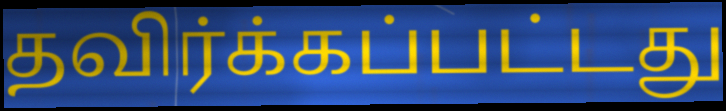
தவிர்க்கப்பட்டது